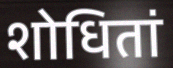
शोधितां